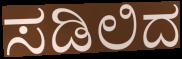
ಸಡಿಲಿದ